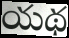
యథ